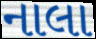
નાલા